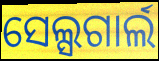
ସେଲ୍ସଗାର୍ଲ